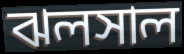
ঝলসাল